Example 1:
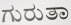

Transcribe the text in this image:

ಗುರುತಾ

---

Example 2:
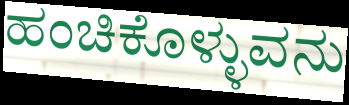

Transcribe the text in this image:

ಹಂಚಿಕೊಳ್ಳುವನು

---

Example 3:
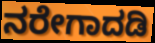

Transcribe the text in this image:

ನರೇಗಾದಡಿ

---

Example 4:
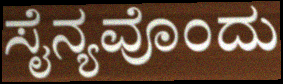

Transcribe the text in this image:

ಸೈನ್ಯವೊಂದು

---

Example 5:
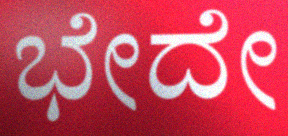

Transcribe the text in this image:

ಭೇದೇ